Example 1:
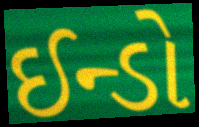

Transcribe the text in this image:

ઈન્ડો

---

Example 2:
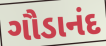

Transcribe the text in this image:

ગૌડાનંદ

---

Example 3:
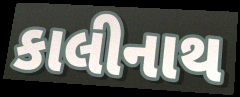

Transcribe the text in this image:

કાલીનાથ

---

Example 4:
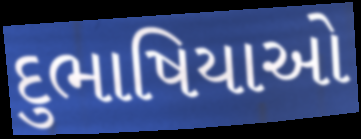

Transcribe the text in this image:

દુભાષિયાઓ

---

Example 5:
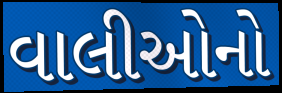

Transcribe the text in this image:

વાલીઓનો